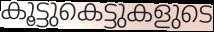
കൂട്ടുകെട്ടുകളുടെ